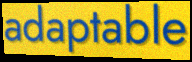
adaptable